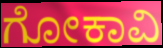
ಗೋಕಾವಿ